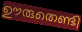
ഊരുതെണ്ടി